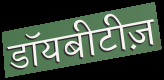
डॉयबीटीज़